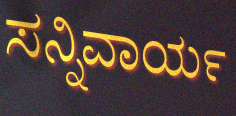
ಸನ್ನಿವಾರ್ಯ